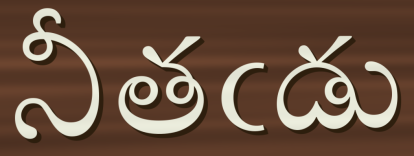
నీతఁడు